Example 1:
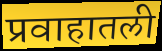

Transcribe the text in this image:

प्रवाहातली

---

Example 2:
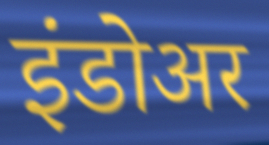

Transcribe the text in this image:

इंडोअर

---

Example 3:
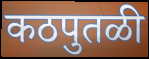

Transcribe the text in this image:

कठपुतळी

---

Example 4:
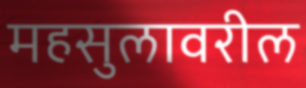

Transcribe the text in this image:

महसुलावरील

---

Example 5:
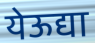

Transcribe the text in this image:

येऊद्या